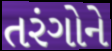
તરંગોને